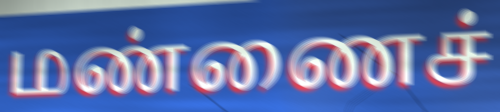
மண்ணைச்